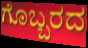
ಗೊಬ್ಬರದ